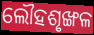
ଲୌହଶୃଙ୍ଖଳ